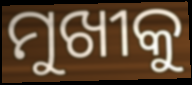
ମୁଖୀକୁ